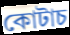
কোটাচ